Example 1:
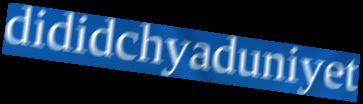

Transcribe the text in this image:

dididchyaduniyet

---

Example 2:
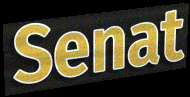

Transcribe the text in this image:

Senat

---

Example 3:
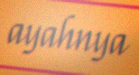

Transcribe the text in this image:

ayahnya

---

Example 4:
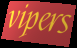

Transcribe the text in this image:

vipers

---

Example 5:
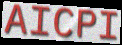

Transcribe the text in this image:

AICPI